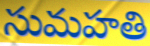
సుమహతి